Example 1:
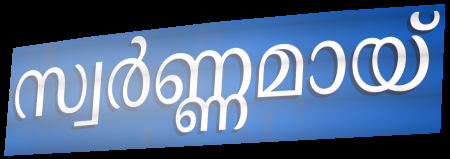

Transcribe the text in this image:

സ്വർണ്ണമായ്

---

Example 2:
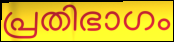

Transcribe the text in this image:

പ്രതിഭാഗം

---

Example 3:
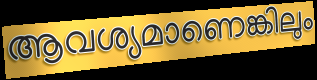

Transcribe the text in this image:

ആവശ്യമാണെങ്കിലും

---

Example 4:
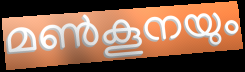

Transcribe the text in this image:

മൺകൂനയും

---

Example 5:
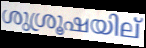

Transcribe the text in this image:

ശുശ്രൂഷയില്